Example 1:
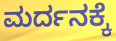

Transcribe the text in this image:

ಮರ್ದನಕ್ಕೆ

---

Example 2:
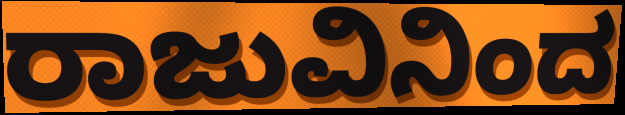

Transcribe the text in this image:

ರಾಜುವಿನಿಂದ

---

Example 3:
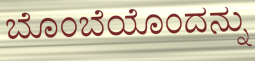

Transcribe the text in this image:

ಬೊಂಬೆಯೊಂದನ್ನು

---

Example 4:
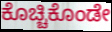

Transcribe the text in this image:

ಕೊಚ್ಚಿಕೊಂಡೇ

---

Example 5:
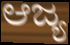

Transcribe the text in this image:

ಆಜ್ಯ